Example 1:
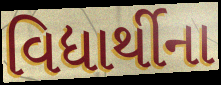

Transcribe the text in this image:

વિદ્યાર્થીના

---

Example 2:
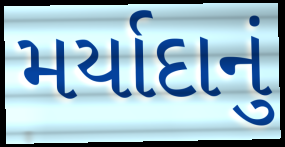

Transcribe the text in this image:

મર્યાદાનું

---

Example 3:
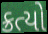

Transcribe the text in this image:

ક્રત્યો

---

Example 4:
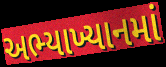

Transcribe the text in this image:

અભ્યાખ્યાનમાં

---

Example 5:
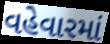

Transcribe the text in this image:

વહેવારમાં